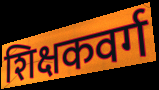
शिक्षकवर्ग